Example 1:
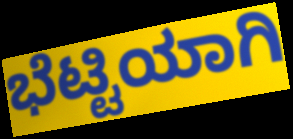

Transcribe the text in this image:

ಭೆಟ್ಟಿಯಾಗಿ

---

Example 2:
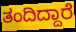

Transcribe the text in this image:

ತಂದಿದ್ದಾರೆ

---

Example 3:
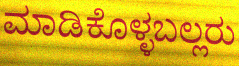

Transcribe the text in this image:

ಮಾಡಿಕೊಳ್ಳಬಲ್ಲರು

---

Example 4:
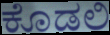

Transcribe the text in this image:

ಕೊಡಲಿ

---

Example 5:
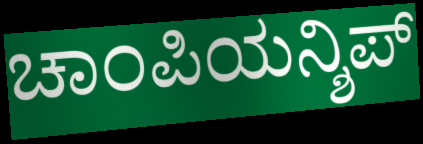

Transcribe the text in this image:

ಚಾಂಪಿಯನ್ಶಿಪ್